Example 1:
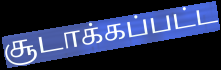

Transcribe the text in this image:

சூடாக்கப்பட்ட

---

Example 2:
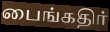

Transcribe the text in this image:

பைங்கதிர்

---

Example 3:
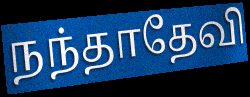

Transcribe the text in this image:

நந்தாதேவி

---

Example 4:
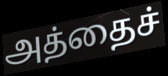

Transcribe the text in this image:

அத்தைச்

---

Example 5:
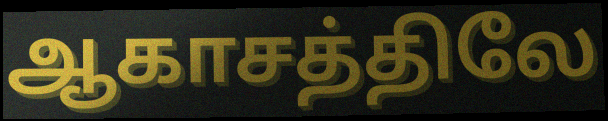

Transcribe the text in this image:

ஆகாசத்திலே